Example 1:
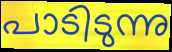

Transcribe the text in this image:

പാടിടുന്നു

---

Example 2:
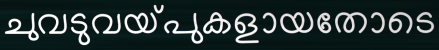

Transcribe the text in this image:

ചുവടുവയ്‌പുകളായതോടെ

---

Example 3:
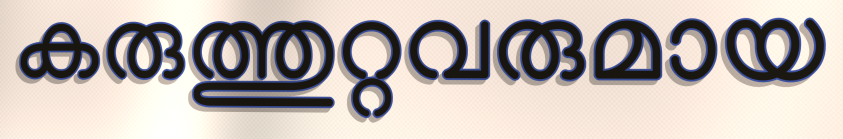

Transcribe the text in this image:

കരുത്തുറ്റവരുമായ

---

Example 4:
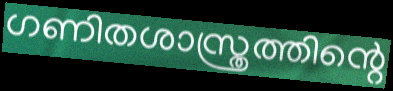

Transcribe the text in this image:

ഗണിതശാസ്ത്രത്തിന്റെ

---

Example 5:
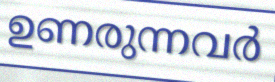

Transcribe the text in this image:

ഉണരുന്നവർ